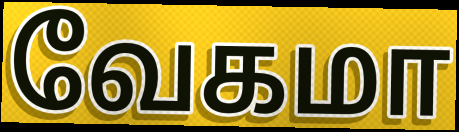
வேகமா